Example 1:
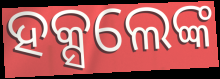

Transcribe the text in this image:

ହକ୍ସଲେଙ୍କ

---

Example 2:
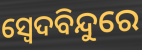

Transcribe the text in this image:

ସ୍ୱେଦବିନ୍ଦୁରେ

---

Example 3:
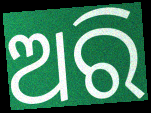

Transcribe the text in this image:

ଅରି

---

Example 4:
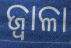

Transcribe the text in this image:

ଜ୍ୱାଳା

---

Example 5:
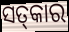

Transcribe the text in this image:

ସତ୍‌କାର